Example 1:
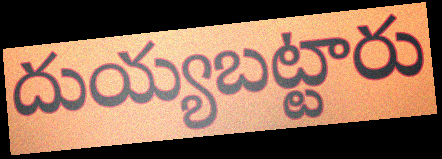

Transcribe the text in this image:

దుయ్యబట్టారు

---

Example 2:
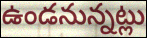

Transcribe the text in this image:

ఉండనున్నట్లు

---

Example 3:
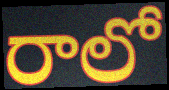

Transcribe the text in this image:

రాలో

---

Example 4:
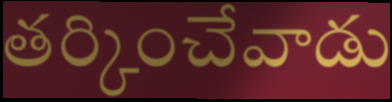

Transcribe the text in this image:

తర్కించేవాడు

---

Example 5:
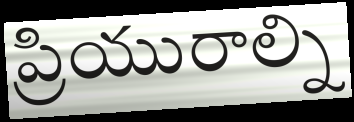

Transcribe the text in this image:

ప్రియురాల్ని